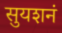
सुयशनं